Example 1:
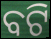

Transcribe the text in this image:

ବଟି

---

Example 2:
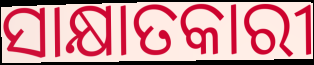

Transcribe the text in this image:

ସାକ୍ଷାତକାରୀ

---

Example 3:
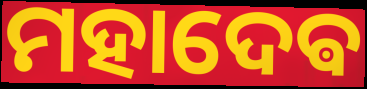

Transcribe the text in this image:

ମହାଦେଵ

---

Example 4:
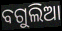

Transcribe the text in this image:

ବଗୁଲିଆ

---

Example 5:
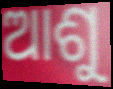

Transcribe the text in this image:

ଆଶୁ